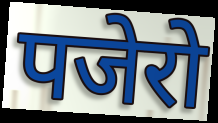
पजेरो